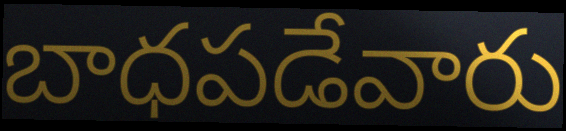
బాధపడేవారు